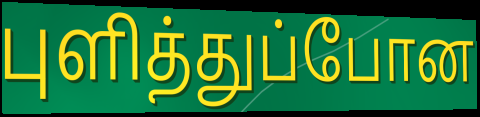
புளித்துப்போன